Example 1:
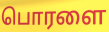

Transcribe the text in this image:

பொரளை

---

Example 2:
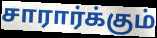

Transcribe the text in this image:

சாரார்க்கும்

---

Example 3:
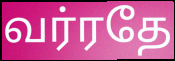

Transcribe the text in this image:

வர்ரதே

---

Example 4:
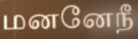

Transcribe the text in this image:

மனனேநீ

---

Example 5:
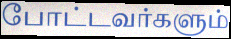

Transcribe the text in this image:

போட்டவர்களும்